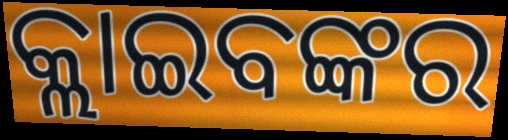
କ୍ଲାଇବଙ୍କର